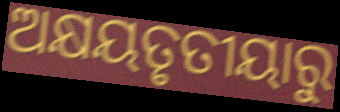
ଅକ୍ଷୟତୃତୀୟାରୁ